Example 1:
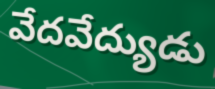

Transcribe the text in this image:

వేదవేద్యుడు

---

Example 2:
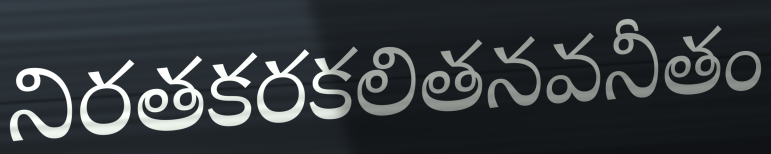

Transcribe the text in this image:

నిరతకరకలితనవనీతం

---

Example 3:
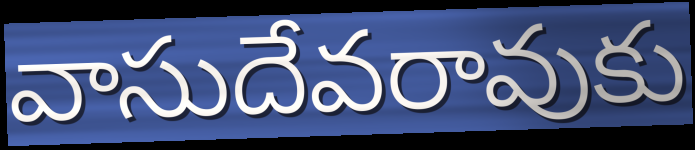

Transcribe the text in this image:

వాసుదేవరావుకు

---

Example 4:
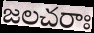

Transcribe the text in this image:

జలచరాః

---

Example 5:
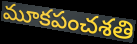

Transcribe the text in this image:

మూకపంచశతి